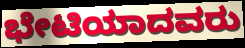
ಭೇಟಿಯಾದವರು